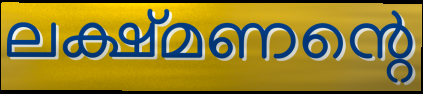
ലക്ഷ്മണന്റെ